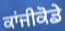
ਕਾਂਜੀਕੋਡੇ